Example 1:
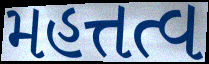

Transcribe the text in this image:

મહત્તત્વ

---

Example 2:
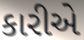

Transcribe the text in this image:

કારીએ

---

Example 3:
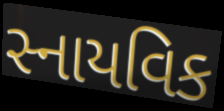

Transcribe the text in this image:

સ્નાયવિક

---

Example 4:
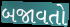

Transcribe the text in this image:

બજાવતો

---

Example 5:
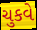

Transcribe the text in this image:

ચુકવે